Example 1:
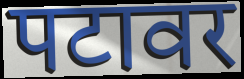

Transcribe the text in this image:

पटावर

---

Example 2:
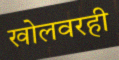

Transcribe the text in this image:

खोलवरही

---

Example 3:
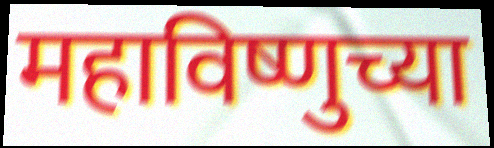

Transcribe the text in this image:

महाविष्णुच्या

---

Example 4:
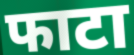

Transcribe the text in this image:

फाटा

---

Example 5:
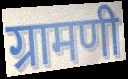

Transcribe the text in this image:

ग्रामणी